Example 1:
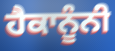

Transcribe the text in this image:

ਹੈਕਾਨੂੰਨੀ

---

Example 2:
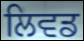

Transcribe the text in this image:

ਲਿਵਡ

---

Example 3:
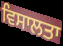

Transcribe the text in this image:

ਵਿਸਾਲਤਾ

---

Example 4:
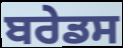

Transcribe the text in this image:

ਬਰੇਡਸ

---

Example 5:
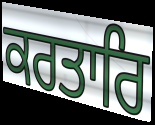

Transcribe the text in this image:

ਕਰਤਾਰਿ